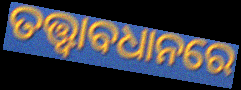
ତତ୍ତ୍ୱାବଧାନରେ